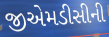
જીએમડીસીની